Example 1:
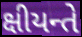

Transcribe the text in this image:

ક્ષીયન્તે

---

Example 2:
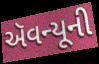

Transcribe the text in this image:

ઍવન્યૂની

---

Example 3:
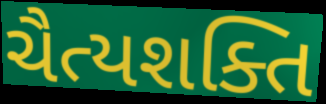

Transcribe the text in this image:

ચૈત્યશક્તિ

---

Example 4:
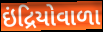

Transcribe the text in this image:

ઇંદ્રિયોવાળા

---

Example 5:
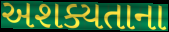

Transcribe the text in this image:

અશક્યતાના